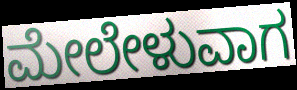
ಮೇಲೇಳುವಾಗ